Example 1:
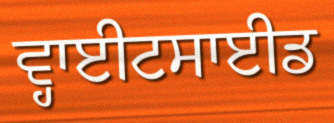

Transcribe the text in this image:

ਵ੍ਹਾਈਟਸਾਈਡ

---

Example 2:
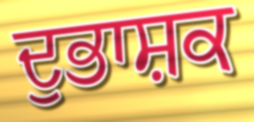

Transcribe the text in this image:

ਦੁਭਾਸ਼ਕ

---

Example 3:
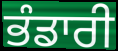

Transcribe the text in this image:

ਭੰਡਾਰੀ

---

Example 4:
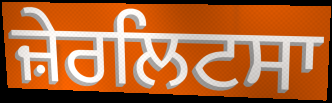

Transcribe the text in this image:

ਜ਼ੇਰਲਿਟਸਾ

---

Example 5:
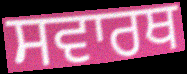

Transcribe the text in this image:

ਸਵਾਰਥ